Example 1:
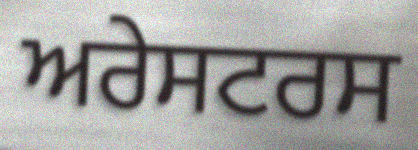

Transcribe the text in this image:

ਅਰੇਸਟਰਸ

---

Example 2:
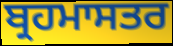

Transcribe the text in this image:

ਬ੍ਰਹਮਾਸਤਰ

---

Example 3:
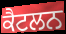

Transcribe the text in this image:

ਕੈਟਲਨ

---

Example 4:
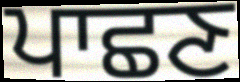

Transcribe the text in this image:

ਪਾਛਣ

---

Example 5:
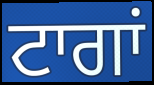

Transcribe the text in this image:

ਟਾਗਾਂ